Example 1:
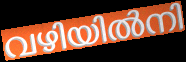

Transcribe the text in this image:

വഴിയിൽനി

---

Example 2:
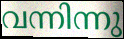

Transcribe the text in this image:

വന്നിന്നു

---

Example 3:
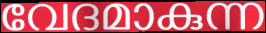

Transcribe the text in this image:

വേദമാകുന്ന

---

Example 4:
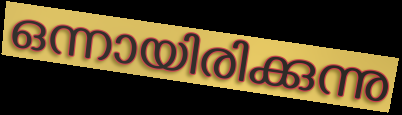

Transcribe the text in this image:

ഒന്നായിരിക്കുന്നു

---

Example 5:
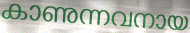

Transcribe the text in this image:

കാണുന്നവനായ